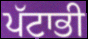
ਪੱਟਾਭੀ